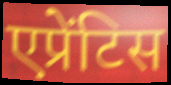
एप्रेंटिस